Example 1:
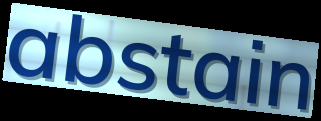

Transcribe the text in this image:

abstain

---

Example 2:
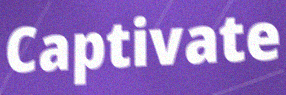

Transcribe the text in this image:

Captivate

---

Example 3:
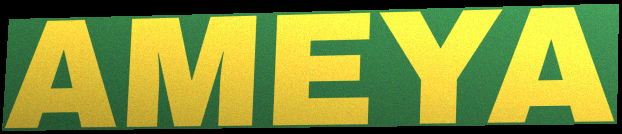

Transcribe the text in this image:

AMEYA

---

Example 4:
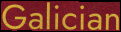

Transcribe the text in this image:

Galician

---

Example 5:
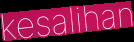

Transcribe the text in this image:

kesalihan